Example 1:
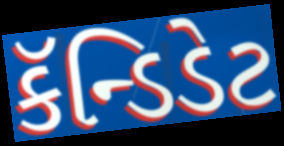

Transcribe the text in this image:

કૅન્ડિડેટ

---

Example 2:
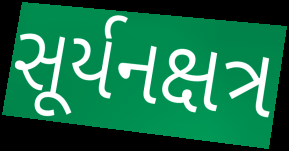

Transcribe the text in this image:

સૂર્યનક્ષત્ર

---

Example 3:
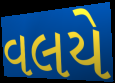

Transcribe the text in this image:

વલયે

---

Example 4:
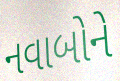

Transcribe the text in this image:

નવાબોને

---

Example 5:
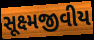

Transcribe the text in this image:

સૂક્ષ્મજીવીય